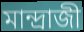
মান্দ্রাজী